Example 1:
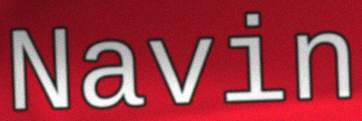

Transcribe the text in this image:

Navin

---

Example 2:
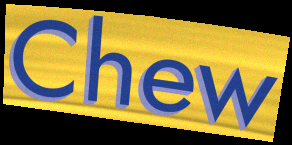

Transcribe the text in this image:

Chew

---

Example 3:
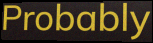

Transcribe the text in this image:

Probably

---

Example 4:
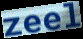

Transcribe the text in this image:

zeel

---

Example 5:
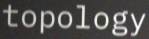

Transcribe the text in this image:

topology